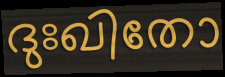
ദുഃഖിതോ